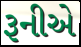
રૂનીએ